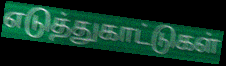
எடுத்துகாட்டுகள்